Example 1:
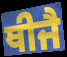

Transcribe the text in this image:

ਥੀਜੈ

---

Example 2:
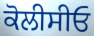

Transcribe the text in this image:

ਕੋਲੀਸੀਓ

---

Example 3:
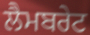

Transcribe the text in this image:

ਲੈਮਬਰੇਟ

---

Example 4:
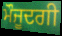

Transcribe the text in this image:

ਮੌਜੂਦਗੀ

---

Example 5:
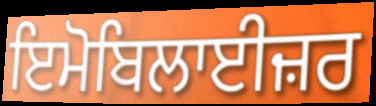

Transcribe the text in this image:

ਇਮੋਬਿਲਾਈਜ਼ਰ